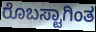
ರೊಬಸ್ಟಾಗಿಂತ